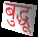
बुद्धू